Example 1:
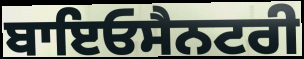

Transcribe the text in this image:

ਬਾਇਓਸੈਨਟਰੀ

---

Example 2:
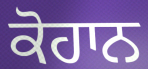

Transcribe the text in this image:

ਕੋਹਾਨ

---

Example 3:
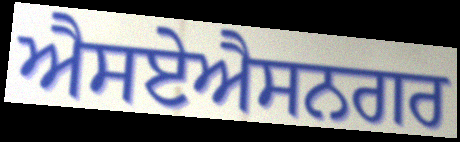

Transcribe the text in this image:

ਐਸਏਐਸਨਗਰ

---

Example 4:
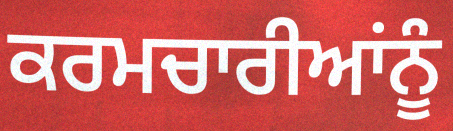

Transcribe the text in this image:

ਕਰਮਚਾਰੀਆਂਨੂੰ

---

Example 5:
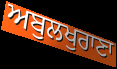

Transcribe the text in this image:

ਅਬੁਲਖੁਰਾਣਾ